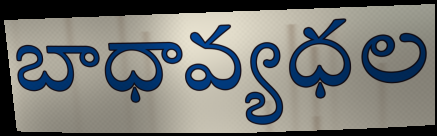
బాధావ్యధల